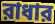
রাধার